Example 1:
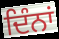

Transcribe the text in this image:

ਦਿੰਨਾਂ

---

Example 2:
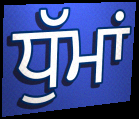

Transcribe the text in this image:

ਧੁੱਮਾਂ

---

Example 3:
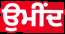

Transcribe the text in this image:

ਉਮੀਂਦ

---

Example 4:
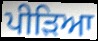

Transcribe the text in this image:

ਪੀੜਿਆ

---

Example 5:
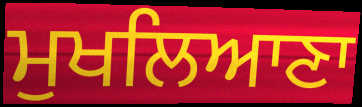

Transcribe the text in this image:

ਮੁਖਲਿਆਣਾ